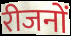
रीजनों